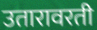
उतारावरती